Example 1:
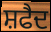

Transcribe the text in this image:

ਸ਼ਫੈਦ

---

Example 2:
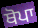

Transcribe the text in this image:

ਥੋਪਾ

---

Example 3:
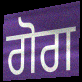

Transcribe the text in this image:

ਗੋਗ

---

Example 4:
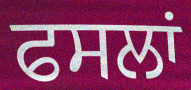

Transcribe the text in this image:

ਫਸਲਾਂ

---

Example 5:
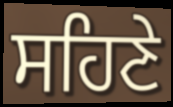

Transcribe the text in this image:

ਸਹਿਣੇ